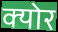
क्योर